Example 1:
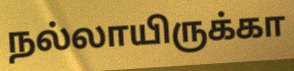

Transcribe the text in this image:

நல்லாயிருக்கா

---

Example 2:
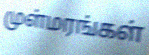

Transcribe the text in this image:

முள்மரங்கள்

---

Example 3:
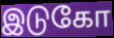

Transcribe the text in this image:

இடுகோ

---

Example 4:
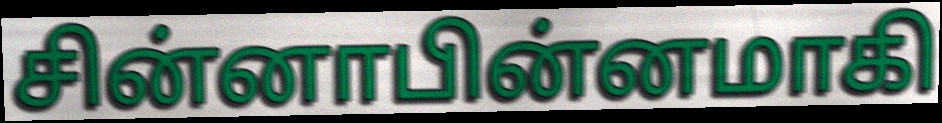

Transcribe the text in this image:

சின்னாபின்னமாகி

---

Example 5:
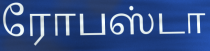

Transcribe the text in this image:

ரோபஸ்டா